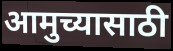
आमुच्यासाठी